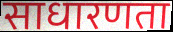
साधारणता